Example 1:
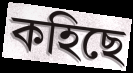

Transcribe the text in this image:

কহিছে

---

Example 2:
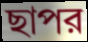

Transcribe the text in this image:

ছাপর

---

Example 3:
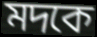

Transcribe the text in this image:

মদকে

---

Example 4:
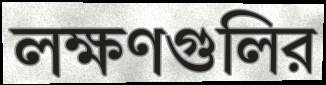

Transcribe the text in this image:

লক্ষণগুলির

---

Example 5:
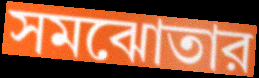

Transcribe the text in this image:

সমঝোতার